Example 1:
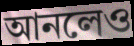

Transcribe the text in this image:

আনলেও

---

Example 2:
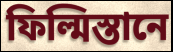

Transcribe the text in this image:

ফিল্মিস্তানে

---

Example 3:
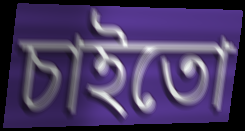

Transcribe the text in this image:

চাইতো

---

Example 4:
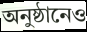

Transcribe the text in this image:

অনুষ্ঠানেও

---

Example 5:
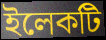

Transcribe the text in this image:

ইলেকটি